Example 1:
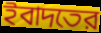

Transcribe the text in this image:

ইবাদতের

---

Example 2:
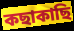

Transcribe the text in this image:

কছাকাছি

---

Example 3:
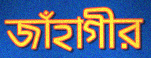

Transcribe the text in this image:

জাঁহাগীর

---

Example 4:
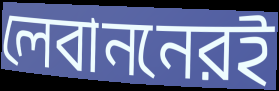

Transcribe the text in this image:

লেবাননেরই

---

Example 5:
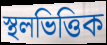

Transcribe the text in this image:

স্থলভিত্তিক